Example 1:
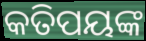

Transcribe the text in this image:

କତିପୟଙ୍କ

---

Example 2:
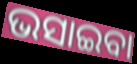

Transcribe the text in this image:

ଭସାଇବା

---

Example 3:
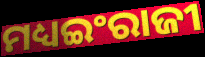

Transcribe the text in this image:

ମଧ୍ୟଇଂରାଜୀ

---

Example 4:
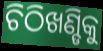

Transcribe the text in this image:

ଚିଠିଖଣ୍ଡିକୁ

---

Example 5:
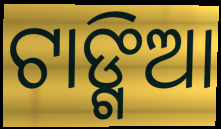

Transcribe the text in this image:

ଟାଙ୍ଗିଆ